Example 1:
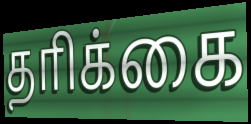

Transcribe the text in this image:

தரிக்கை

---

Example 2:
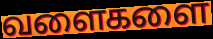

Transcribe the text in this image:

வளைகளை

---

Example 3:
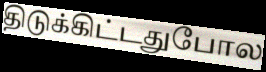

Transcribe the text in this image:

திடுக்கிட்டதுபோல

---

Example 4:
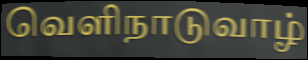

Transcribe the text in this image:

வெளிநாடுவாழ்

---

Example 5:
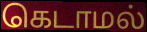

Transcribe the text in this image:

கெடாமல்